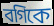
বগিকে